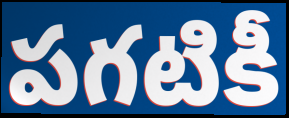
పగటికీ